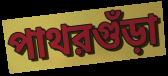
পাথরগুঁড়া